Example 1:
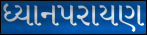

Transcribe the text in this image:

ધ્યાનપરાયણ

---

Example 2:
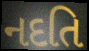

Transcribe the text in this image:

નદતિ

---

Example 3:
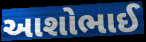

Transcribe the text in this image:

આશોભાઈ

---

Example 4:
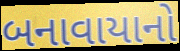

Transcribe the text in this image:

બનાવાયાનો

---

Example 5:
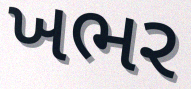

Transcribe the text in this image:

ખભર